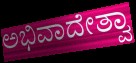
ಅಭಿವಾದೇತ್ವಾ